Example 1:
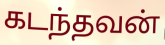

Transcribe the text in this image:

கடந்தவன்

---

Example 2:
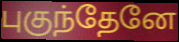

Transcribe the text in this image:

புகுந்தேனே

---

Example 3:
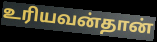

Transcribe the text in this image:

உரியவன்தான்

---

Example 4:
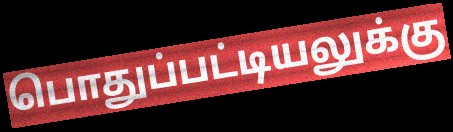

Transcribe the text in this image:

பொதுப்பட்டியலுக்கு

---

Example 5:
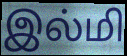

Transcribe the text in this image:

இல்மி